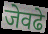
जेवढे